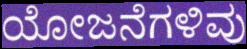
ಯೋಜನೆಗಳಿವು